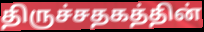
திருச்சதகத்தின்